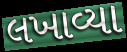
લખાવ્યા